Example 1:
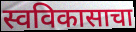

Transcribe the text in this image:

स्वविकासाचा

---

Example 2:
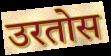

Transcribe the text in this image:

उरतोस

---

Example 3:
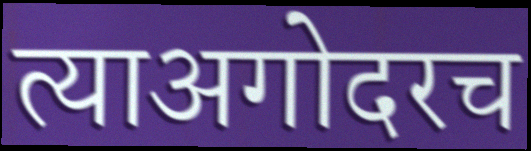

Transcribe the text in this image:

त्याअगोदरच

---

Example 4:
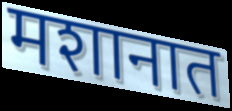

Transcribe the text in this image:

मशानात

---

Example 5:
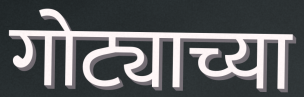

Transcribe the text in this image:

गोट्याच्या